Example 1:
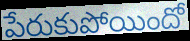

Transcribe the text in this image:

పేరుకుపోయిందో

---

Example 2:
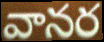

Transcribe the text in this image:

వానర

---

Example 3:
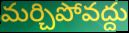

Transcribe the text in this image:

మర్చిపోవద్దు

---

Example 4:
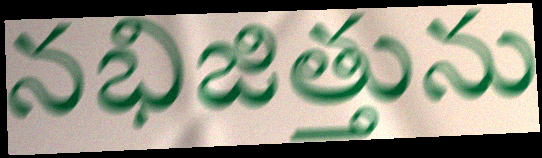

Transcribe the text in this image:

నభిజిత్తును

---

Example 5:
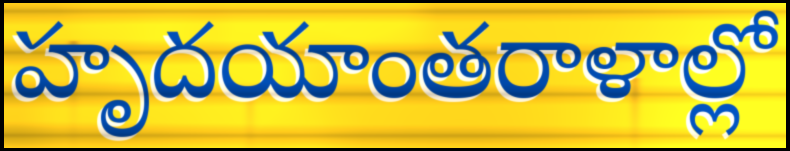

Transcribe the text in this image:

హృదయాంతరాళాల్లో